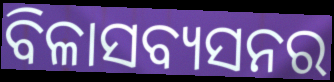
ବିଳାସବ୍ୟସନର